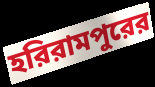
হরিরামপুরের